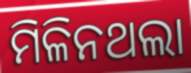
ମିଳିନଥଲା